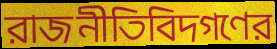
রাজনীতিবিদগণের